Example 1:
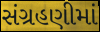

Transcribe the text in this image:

સંગ્રહણીમાં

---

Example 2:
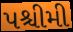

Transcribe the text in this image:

પશ્ચીમી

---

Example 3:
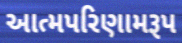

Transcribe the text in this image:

આત્મપરિણામરૂપ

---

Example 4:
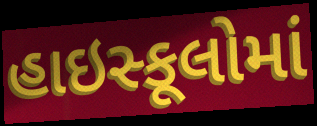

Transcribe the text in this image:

હાઇસ્કૂલોમાં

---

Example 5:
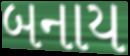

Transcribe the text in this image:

બનાય